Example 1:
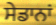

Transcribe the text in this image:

ਸੇਡਾਨਾਂ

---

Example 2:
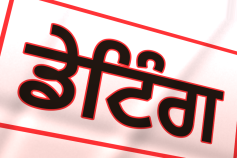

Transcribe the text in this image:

ਡੇਟਿੰਗ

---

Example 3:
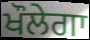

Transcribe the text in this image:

ਖੌਲੇਗਾ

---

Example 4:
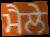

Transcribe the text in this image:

ਮੈਲੇ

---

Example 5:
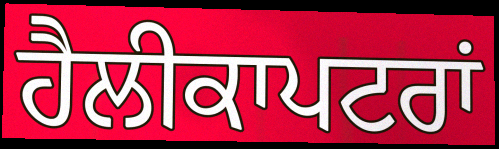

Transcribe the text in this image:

ਹੈਲੀਕਾਪਟਰਾਂ